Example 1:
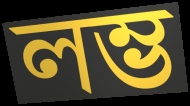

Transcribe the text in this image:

লম্ভ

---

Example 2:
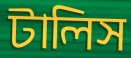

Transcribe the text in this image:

টালিস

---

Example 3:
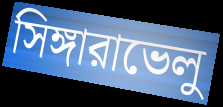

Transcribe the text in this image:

সিঙ্গারাভেলু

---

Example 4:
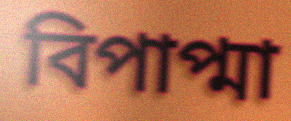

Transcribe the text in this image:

বিপাপ্মা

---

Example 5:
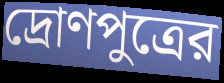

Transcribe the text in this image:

দ্রোণপুত্রের